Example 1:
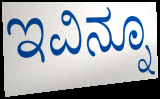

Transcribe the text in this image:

ಇವಿನ್ನೂ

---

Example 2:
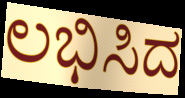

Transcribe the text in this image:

ಲಭಿಸಿದ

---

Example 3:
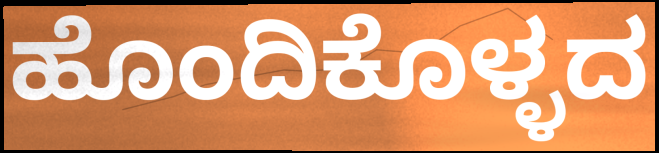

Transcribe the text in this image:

ಹೊಂದಿಕೊಳ್ಳದ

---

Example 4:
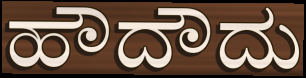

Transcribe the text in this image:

ಹೌದೌದು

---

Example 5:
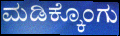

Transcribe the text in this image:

ಮಡಿಕ್ಕೊಂಗು